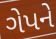
ગેપને